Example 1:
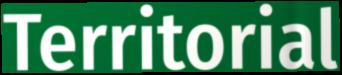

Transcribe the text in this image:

Territorial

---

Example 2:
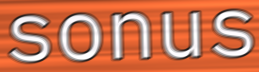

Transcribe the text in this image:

sonus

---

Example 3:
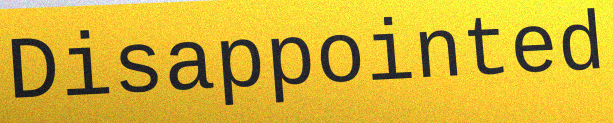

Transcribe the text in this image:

Disappointed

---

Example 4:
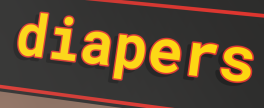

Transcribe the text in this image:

diapers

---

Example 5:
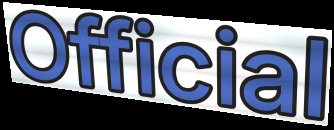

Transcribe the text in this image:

Official